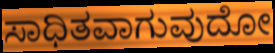
ಸಾಧಿತವಾಗುವುದೋ